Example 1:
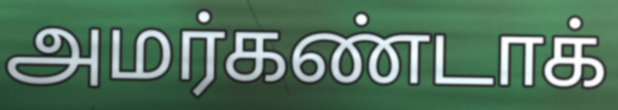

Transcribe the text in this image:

அமர்கண்டாக்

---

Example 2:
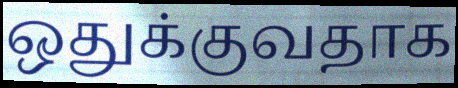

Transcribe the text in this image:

ஒதுக்குவதாக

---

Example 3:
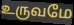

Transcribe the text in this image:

உருவமே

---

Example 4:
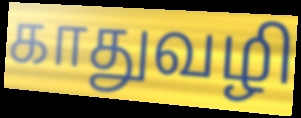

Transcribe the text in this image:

காதுவழி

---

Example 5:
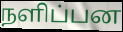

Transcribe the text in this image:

நளிப்பன